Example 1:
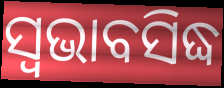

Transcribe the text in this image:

ସ୍ଵଭାବସିଦ୍ଧ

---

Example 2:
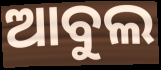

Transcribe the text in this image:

ଆବୁଲ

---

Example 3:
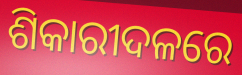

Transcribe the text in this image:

ଶିକାରୀଦଳରେ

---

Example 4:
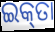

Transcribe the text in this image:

ଇକ୍‌ତା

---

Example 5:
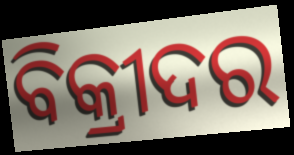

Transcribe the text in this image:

ବିକ୍ରୀଦର